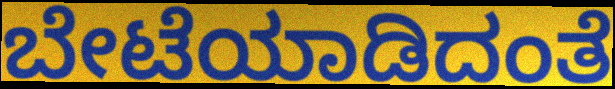
ಬೇಟೆಯಾಡಿದಂತೆ